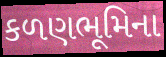
કળણભૂમિના